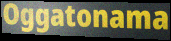
Oggatonama